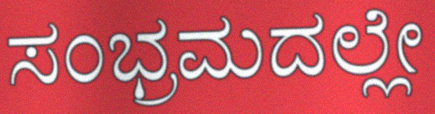
ಸಂಭ್ರಮದಲ್ಲೇ